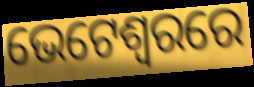
ଭେଟେଶ୍ୱରରେ